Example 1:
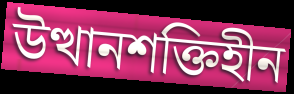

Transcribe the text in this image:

উত্থানশক্তিহীন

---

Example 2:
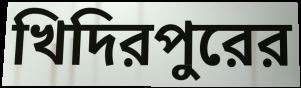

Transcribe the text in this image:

খিদিরপুরের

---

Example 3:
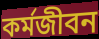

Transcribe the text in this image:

কর্মজীবন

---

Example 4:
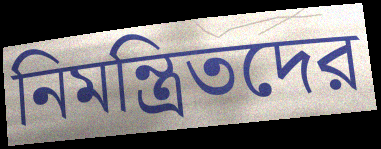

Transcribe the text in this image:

নিমন্ত্রিতদের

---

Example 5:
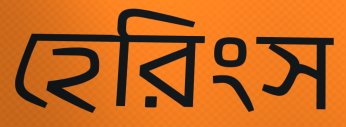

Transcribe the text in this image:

হেরিংস